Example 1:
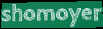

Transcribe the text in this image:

shomoyer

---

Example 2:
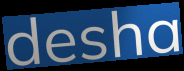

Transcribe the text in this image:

desha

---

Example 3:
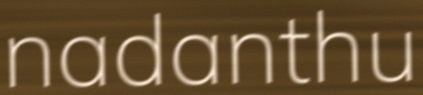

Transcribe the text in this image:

nadanthu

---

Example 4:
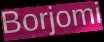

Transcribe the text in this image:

Borjomi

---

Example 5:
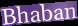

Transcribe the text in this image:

Bhaban